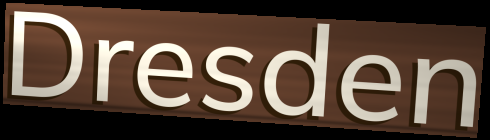
Dresden